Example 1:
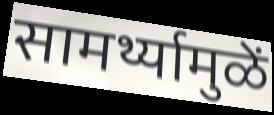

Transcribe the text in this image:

सामर्थ्यामुळें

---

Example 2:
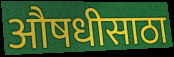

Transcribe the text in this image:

औषधीसाठा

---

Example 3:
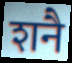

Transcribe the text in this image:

शनै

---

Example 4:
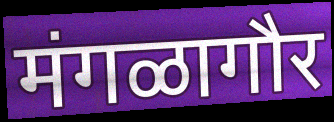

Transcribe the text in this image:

मंगळागौर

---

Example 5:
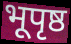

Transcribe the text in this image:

भूपृष्ठ